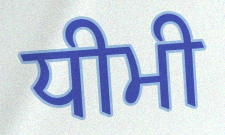
ਧੀਮੀ